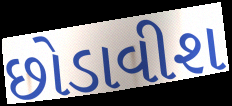
છોડાવીશ